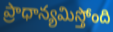
ప్రాధాన్యమిస్తోంది